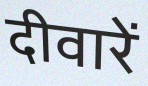
दीवारें